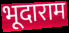
भूदाराम